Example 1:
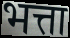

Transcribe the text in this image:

भत्ता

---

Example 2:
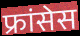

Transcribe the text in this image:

फ्रांसेस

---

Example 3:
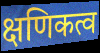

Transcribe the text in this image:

क्षणिकत्व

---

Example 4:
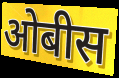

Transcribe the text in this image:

ओबीस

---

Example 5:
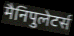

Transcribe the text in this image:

मैनिपुलेटर्स